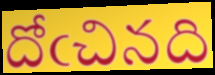
దోఁచినది